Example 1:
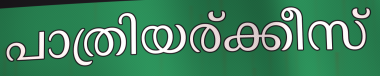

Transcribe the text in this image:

പാത്രിയര്ക്കീസ്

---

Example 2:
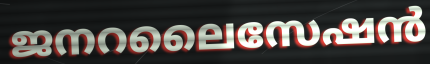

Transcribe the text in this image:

ജനറലൈസേഷൻ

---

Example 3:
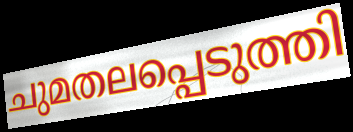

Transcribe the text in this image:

ചുമതലപ്പെടുത്തി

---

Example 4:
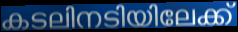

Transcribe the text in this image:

കടലിനടിയിലേക്ക്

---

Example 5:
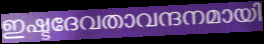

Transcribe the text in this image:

ഇഷ്ടദേവതാവന്ദനമായി